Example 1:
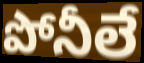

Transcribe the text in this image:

పోనీలే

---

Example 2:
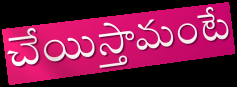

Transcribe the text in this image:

చేయిస్తామంటే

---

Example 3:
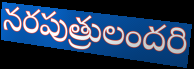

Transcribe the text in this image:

నరపుత్రులందరి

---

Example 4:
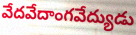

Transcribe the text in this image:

వేదవేదాంగవేద్యుడు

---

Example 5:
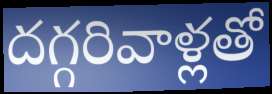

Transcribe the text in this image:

దగ్గరివాళ్లతో